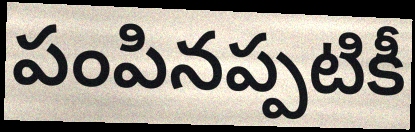
పంపినప్పటికీ